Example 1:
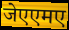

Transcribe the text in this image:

जेएएमए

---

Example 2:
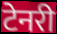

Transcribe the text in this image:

टेनरी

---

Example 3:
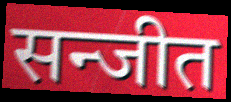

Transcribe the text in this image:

सन्जीत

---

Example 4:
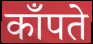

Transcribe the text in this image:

काँपते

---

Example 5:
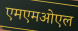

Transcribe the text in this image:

एमएमओएल